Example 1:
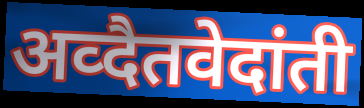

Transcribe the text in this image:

अव्दैतवेदांती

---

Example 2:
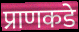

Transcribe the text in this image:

प्राणकडे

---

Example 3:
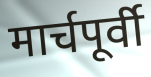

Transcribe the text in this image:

मार्चपूर्वी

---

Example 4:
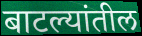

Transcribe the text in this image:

बाटल्यांतील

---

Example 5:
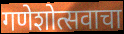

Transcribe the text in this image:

गणेशोत्सवाचा